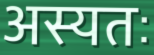
अस्यतः